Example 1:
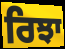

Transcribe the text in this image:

ਰਿਝਾ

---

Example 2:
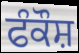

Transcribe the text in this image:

ਫੰਕੌਸ਼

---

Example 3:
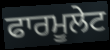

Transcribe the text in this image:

ਫਾਰਮੂਲੇਟ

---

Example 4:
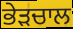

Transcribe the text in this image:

ਭੇੜਚਾਲ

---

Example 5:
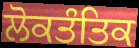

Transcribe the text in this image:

ਲੋਕਤੰਤਿਕ